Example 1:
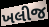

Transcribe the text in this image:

ખલીજ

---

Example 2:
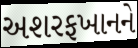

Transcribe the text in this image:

અશરફખાનને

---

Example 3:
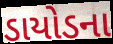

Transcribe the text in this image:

ડાયોડના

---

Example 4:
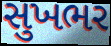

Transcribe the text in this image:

સુખભર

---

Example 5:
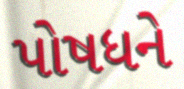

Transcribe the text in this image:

પોષધને